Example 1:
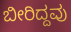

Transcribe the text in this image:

ಬೀರಿದ್ದವು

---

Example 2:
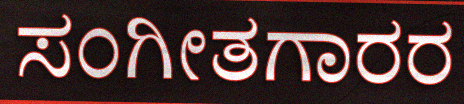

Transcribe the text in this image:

ಸಂಗೀತಗಾರರ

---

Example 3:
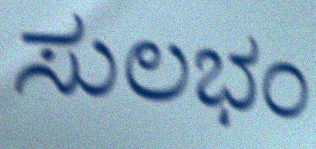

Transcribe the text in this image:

ಸುಲಭಂ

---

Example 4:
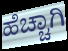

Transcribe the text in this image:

ಹೆಚ್ಚಾಗಿ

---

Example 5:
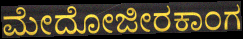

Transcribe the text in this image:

ಮೇದೋಜೀರಕಾಂಗ